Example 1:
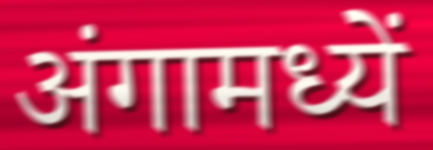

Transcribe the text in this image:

अंगामध्यें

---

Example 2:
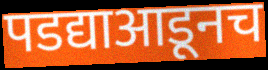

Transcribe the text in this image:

पडद्याआडूनच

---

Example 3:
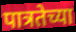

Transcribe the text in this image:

पात्रतेच्या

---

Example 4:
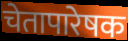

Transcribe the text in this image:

चेतापारेषक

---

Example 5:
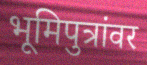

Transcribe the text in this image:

भूमिपुत्रांवर